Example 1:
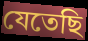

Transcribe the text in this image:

যেতেছি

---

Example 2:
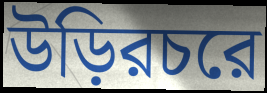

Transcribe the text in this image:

উড়িরচরে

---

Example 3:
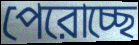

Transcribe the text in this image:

পেরোচ্ছে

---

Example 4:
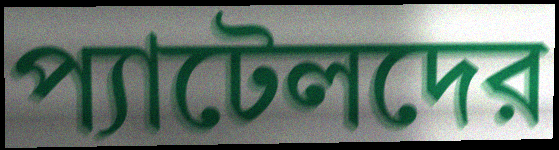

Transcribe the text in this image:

প্যাটেলদের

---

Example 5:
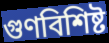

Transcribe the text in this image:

গুণবিশিষ্ট